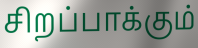
சிறப்பாக்கும்